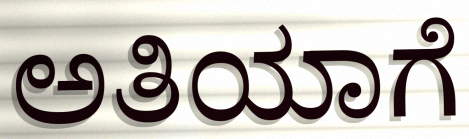
ಅತಿಯಾಗೆ